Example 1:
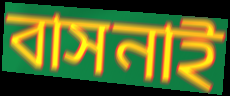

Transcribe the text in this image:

বাসনাই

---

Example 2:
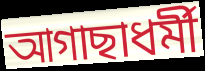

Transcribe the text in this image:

আগাছাধর্মী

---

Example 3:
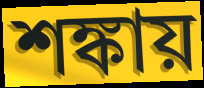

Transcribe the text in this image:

শঙ্কায়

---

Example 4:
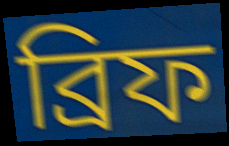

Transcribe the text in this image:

ব্রিফ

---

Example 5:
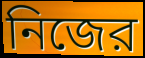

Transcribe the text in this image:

নিজের